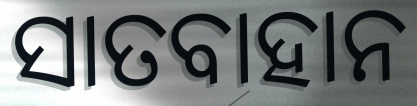
ସାତବାହାନ